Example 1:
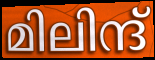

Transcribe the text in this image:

മിലിന്ദ്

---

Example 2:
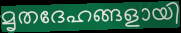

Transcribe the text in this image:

മൃതദേഹങ്ങളായി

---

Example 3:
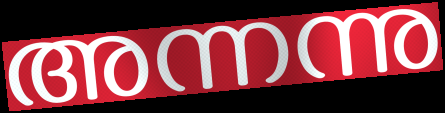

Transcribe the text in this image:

അന്നന്നു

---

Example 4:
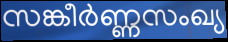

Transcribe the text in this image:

സങ്കീർണ്ണസംഖ്യ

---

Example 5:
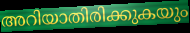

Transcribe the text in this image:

അറിയാതിരിക്കുകയും